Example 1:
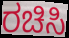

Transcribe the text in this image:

ರಚಿಸಿ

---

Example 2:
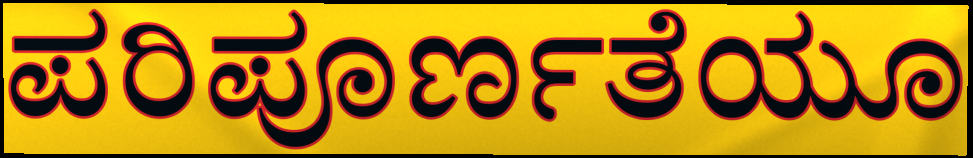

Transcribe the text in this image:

ಪರಿಪೂರ್ಣತೆಯೂ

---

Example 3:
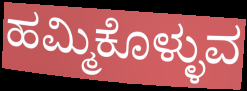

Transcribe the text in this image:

ಹಮ್ಮಿಕೊಳ್ಳುವ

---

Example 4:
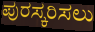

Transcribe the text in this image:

ಪುರಸ್ಕರಿಸಲು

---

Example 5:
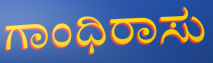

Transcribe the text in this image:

ಗಾಂಧಿರಾಸು